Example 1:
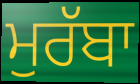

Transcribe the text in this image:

ਮੁਰੱਬਾ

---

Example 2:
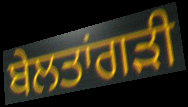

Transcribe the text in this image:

ਬੇਲਤਾਂਗੜੀ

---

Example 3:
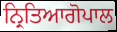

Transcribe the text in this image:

ਨ੍ਰਿਤਿਆਗੋਪਾਲ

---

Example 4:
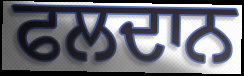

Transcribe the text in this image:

ਫਲਦਾਨ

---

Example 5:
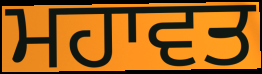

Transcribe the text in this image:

ਮਹਾਵਤ